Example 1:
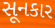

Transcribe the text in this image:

સૂનકાર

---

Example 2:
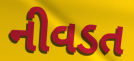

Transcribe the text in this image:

નીવડત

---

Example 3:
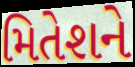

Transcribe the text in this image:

મિતેશને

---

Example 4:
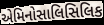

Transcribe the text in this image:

એમિનોસાલિસિલિક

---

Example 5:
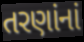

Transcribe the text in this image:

તરણાંનાં